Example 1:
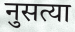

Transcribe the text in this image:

नुसत्या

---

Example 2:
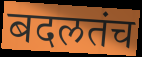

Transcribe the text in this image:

बदलतंच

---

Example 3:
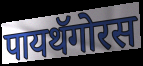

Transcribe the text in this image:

पायथॅगोरस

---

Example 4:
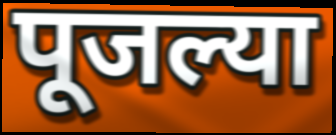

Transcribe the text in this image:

पूजल्या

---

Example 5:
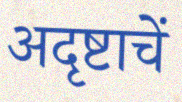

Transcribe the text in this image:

अदृष्टाचें